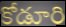
కోడూరి